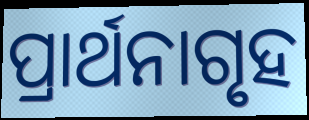
ପ୍ରାର୍ଥନାଗୃହ